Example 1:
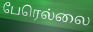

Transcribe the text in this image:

பேரெல்லை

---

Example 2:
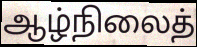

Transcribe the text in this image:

ஆழ்நிலைத்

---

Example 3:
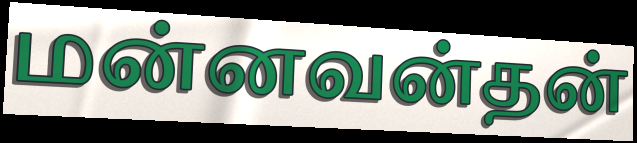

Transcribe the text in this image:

மன்னவன்தன்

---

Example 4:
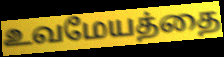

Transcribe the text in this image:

உவமேயத்தை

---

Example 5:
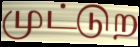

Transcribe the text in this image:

முட்டுற